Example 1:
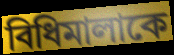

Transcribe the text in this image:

বিধিমালাকে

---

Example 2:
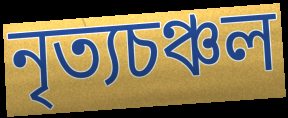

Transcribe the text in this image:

নৃত্যচঞ্চল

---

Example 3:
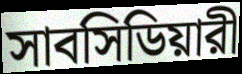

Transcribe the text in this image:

সাবসিডিয়ারী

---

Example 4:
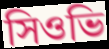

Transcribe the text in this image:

সিওভি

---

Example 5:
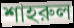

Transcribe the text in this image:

শাহরুল